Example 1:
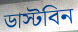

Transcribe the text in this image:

ডাস্টবিন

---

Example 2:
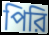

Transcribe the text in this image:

পিরি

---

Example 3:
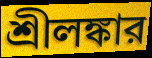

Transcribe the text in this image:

শ্রীলঙ্কার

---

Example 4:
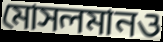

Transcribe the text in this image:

মোসলমানও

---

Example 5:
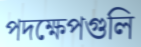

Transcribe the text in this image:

পদক্ষেপগুলি